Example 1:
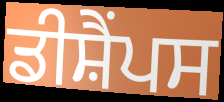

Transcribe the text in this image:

ਡੀਸ਼ੈਂਪਸ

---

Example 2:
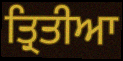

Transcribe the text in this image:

ਤ੍ਰਿਤੀਆ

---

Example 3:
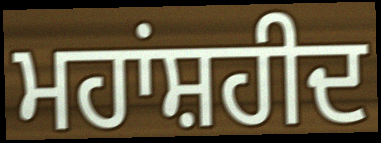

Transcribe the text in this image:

ਮਹਾਂਸ਼ਹੀਦ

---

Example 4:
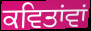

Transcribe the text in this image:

ਕਵਿਤਾਂਵਾਂ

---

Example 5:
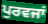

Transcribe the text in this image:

ਪੁਰਵਜਾਂ